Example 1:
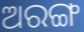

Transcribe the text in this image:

ଅରଙ୍ଗ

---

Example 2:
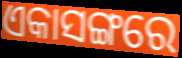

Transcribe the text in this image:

ଏକାସଙ୍ଗରେ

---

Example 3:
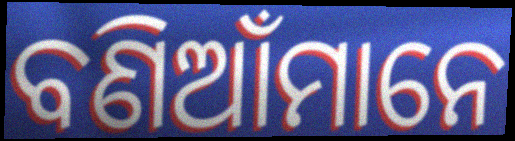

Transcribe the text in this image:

ବଣିଆଁମାନେ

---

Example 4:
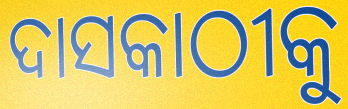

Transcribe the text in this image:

ଦାସକାଠୀକୁ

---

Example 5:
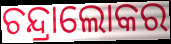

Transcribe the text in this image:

ଚନ୍ଦ୍ରାଲୋକର